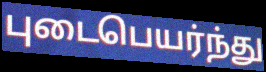
புடைபெயர்ந்து